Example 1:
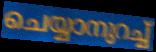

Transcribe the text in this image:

ചെയ്യാനുറച്ച്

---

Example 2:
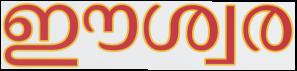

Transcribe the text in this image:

ഈശ്വര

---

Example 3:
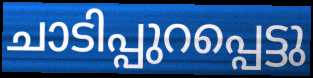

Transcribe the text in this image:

ചാടിപ്പുറപ്പെട്ടു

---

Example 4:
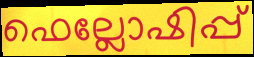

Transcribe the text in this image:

ഫെല്ലോഷിപ്പ്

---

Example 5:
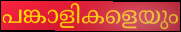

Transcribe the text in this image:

പങ്കാളികളെയും